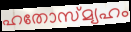
ഹതോസ്മ്യഹം